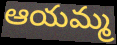
ఆయమ్మ